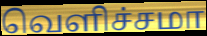
வெளிச்சமா